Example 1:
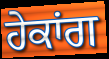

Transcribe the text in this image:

ਹੇਕਾਂਗ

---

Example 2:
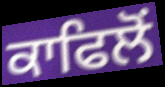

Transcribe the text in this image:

ਕਾਫਿਲੋਂ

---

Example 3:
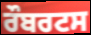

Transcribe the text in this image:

ਰੌਬਰਟਸ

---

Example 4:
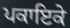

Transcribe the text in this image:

ਪਕਾਇਕੇ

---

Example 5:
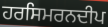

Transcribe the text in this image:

ਹਰਸਿਮਰਨਦੀਪ